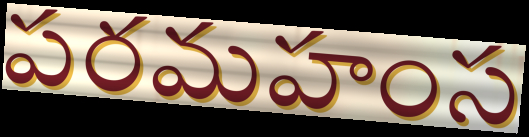
పరమహంస